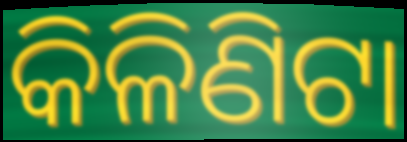
କିଳିଣିଟା